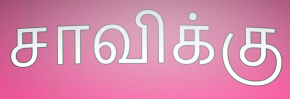
சாவிக்கு